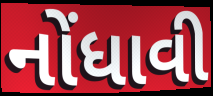
નોંધાવી